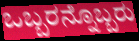
ಒಬ್ಬರನ್ನೊಬ್ಬರು